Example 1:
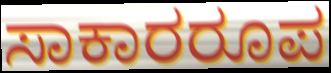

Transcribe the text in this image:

ಸಾಕಾರರೂಪ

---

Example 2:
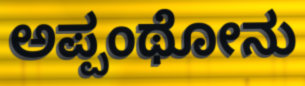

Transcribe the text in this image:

ಅಪ್ಪಂಥೋನು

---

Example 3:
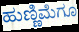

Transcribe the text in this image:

ಹುಣ್ಣಿಮೆಗೂ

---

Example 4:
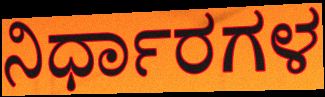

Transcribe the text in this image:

ನಿರ್ಧಾರಗಳ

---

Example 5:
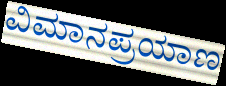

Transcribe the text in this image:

ವಿಮಾನಪ್ರಯಾಣ